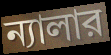
ন্যালার